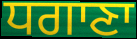
ਧਗਾਣਾ